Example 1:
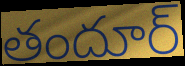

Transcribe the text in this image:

తందూర్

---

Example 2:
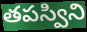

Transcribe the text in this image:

తపస్విని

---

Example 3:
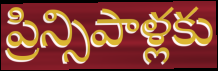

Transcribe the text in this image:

ప్రిన్సిపాళ్లకు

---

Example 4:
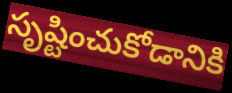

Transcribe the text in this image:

సృష్టించుకోడానికి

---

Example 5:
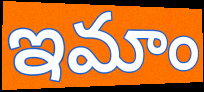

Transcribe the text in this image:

ఇమాం